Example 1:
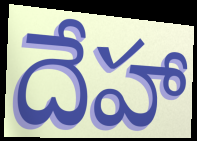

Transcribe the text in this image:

దేహా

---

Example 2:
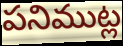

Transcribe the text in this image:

పనిముట్ల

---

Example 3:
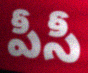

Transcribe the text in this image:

పీసీ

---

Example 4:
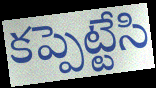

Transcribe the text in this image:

కప్పెట్టేసి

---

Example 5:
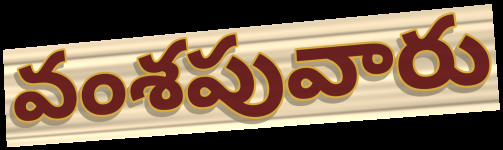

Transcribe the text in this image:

వంశపువారు